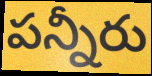
పన్నీరు